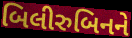
બિલીરુબિનને